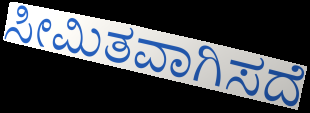
ಸೀಮಿತವಾಗಿಸದೆ